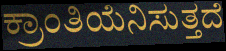
ಕ್ರಾಂತಿಯೆನಿಸುತ್ತದೆ